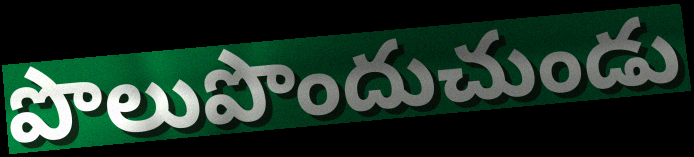
పొలుపొందుచుండు